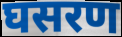
घसरण